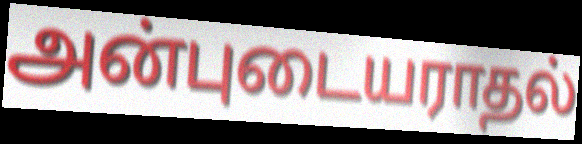
அன்புடையராதல்